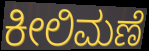
ಕೀಲಿಮಣೆ